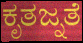
ಕೃತಜ್ನತೆ